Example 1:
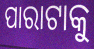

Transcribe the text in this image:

ପାରାଟାକୁ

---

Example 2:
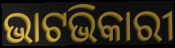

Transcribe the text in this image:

ଭାଟଭିକାରୀ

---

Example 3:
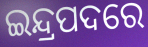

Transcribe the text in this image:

ଇନ୍ଦ୍ରପଦରେ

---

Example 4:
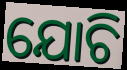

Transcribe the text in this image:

ଯୋଚି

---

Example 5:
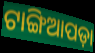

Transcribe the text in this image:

ଟାଙ୍ଗିଆପଡ଼ା